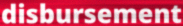
disbursement